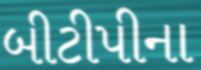
બીટીપીના